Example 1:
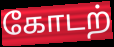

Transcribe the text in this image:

கோடற்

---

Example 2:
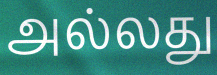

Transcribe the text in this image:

அல்லது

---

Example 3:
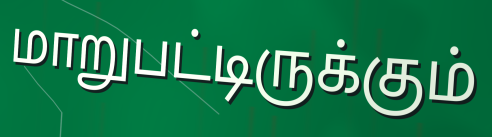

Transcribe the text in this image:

மாறுபட்டிருக்கும்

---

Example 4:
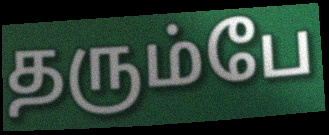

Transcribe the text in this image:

தரும்பே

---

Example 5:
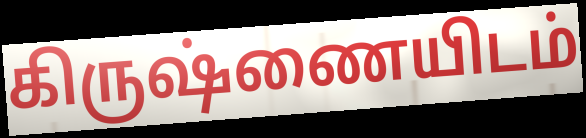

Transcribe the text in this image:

கிருஷ்ணையிடம்